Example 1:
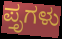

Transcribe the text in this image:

ಪ್ತೃಗಳು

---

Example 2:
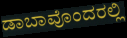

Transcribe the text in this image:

ಡಾಬಾವೊಂದರಲ್ಲಿ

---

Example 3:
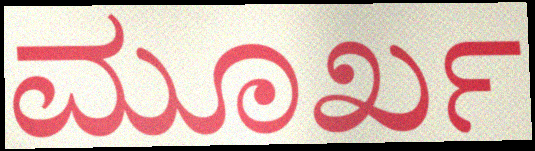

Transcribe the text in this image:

ಮೂರ್ಖ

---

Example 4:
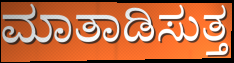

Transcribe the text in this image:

ಮಾತಾಡಿಸುತ್ತ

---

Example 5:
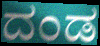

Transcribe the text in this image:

ದಂಡ